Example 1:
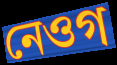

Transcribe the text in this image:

নেওগ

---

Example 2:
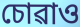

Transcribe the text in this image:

চোৱাও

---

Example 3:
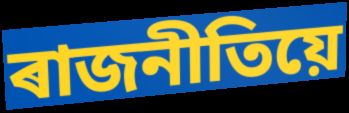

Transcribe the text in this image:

ৰাজনীতিয়ে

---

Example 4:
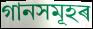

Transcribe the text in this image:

গানসমূহৰ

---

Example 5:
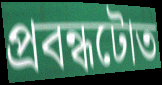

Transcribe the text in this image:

প্ৰবন্ধটোত